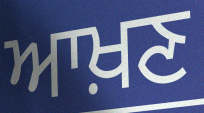
ਆਖ਼ਣ